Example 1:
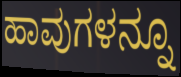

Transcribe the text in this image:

ಹಾವುಗಳನ್ನೂ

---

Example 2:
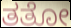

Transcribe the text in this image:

ತತೋ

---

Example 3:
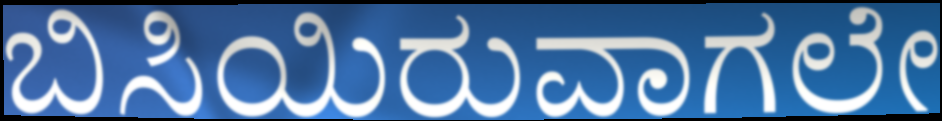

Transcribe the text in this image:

ಬಿಸಿಯಿರುವಾಗಲೇ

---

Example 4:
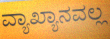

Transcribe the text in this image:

ವ್ಯಾಖ್ಯಾನವಲ್ಲ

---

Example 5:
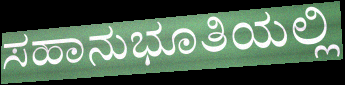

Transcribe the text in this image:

ಸಹಾನುಭೂತಿಯಲ್ಲಿ